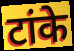
टांके